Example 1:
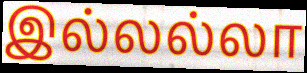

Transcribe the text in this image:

இல்லல்லா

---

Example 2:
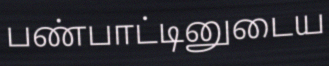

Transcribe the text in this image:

பண்பாட்டினுடைய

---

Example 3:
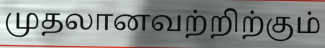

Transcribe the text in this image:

முதலானவற்றிற்கும்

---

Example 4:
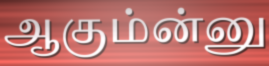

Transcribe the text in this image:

ஆகும்ன்னு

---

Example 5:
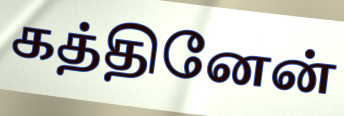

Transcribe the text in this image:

கத்தினேன்